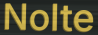
Nolte